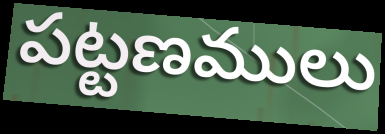
పట్టణములు